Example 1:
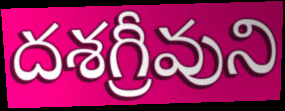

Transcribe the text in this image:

దశగ్రీవుని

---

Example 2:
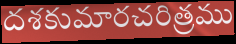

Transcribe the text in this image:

దశకుమారచరిత్రము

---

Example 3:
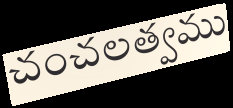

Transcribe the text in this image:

చంచలత్వము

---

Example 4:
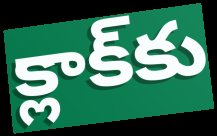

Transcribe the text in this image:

క్లాక్‌కు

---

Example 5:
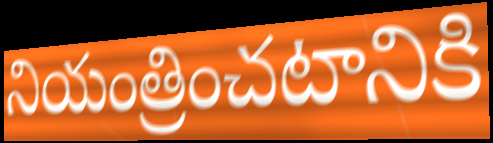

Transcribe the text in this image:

నియంత్రించటానికి